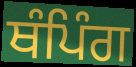
ਥੰਪਿੰਗ